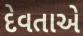
દેવતાએ